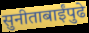
सुनीताबाईंपुढे